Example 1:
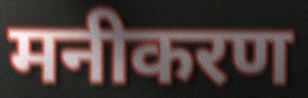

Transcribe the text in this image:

मनीकरण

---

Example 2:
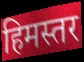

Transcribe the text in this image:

हिमस्तर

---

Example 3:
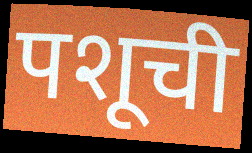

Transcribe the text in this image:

पशूची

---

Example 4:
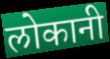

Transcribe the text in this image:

लोकानी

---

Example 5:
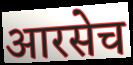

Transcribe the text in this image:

आरसेच